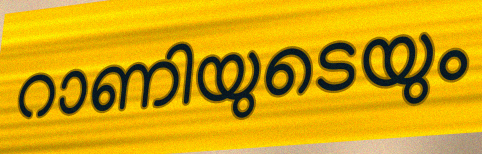
റാണിയുടെയും